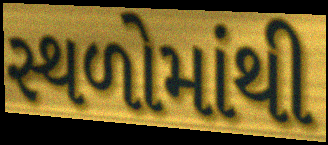
સ્થળોમાંથી